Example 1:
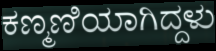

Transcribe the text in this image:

ಕಣ್ಮಣಿಯಾಗಿದ್ದಳು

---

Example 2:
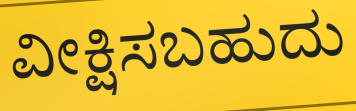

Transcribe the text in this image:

ವೀಕ್ಷಿಸಬಹುದು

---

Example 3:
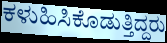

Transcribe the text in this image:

ಕಳುಹಿಸಿಕೊಡುತ್ತಿದ್ದರು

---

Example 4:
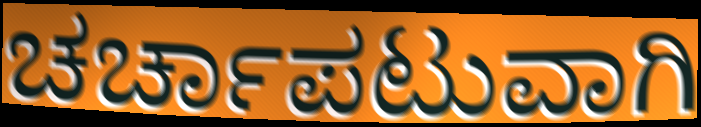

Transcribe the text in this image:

ಚರ್ಚಾಪಟುವಾಗಿ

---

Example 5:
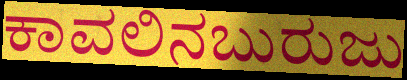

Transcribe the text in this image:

ಕಾವಲಿನಬುರುಜು